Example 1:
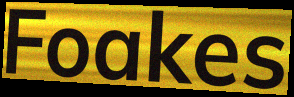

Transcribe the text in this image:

Foakes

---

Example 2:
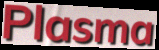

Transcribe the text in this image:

Plasma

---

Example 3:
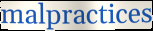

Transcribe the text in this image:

malpractices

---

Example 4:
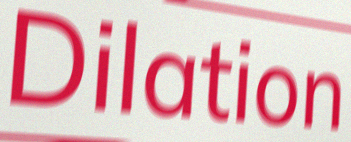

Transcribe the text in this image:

Dilation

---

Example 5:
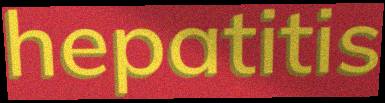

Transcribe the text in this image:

hepatitis